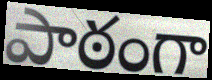
పాఠంగా